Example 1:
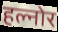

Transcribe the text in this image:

हल्नोर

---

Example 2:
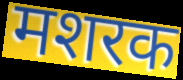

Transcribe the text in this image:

मशरक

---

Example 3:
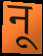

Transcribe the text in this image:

नू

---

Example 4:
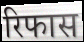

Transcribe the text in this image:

रिफास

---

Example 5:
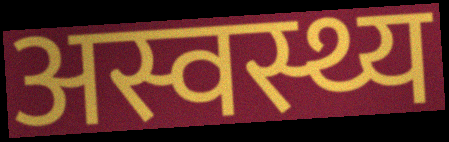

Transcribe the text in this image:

अस्वस्थ्य